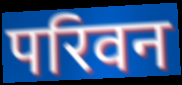
परिवन